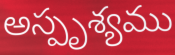
అస్పృశ్యము